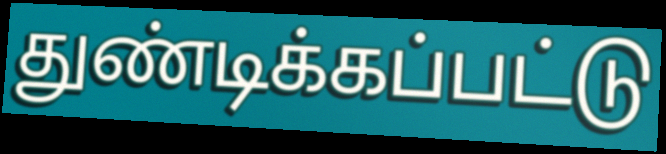
துண்டிக்கப்பட்டு